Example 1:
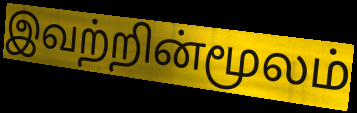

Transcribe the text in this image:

இவற்றின்மூலம்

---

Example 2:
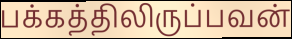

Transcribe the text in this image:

பக்கத்திலிருப்பவன்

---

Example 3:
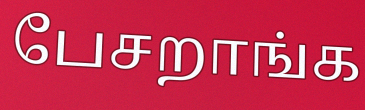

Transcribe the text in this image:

பேசறாங்க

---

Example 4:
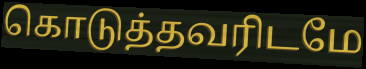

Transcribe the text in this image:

கொடுத்தவரிடமே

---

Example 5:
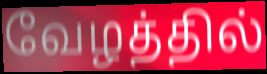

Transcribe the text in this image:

வேழத்தில்